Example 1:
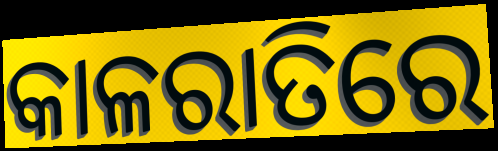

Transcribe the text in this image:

କାଳରାତିରେ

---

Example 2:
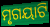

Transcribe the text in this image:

ମୃଗୟାଟି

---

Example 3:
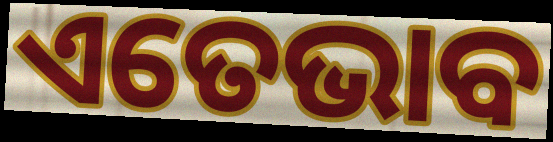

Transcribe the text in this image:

ଏତେଭାବ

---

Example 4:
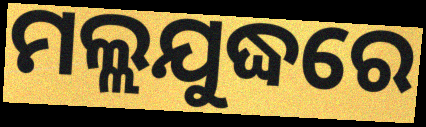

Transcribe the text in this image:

ମଲ୍ଲଯୁଦ୍ଧରେ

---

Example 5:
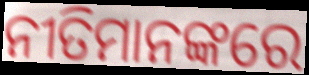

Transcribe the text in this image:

ନୀତିମାନଙ୍କରେ